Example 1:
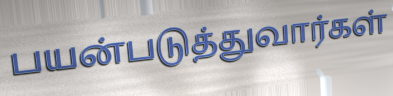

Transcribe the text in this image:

பயன்படுத்துவார்கள்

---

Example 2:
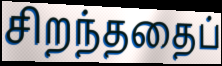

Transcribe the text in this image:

சிறந்ததைப்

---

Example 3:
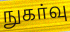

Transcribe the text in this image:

நுகர்வு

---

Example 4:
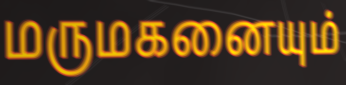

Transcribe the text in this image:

மருமகனையும்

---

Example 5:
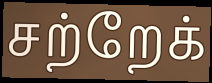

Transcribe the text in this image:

சற்றேக்